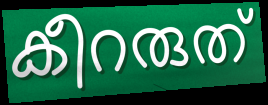
കീറരുത്